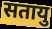
सतायु